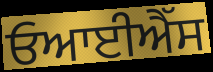
ਓਆਈਐੱਸ